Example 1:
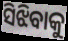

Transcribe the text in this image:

ସିଝିବାକୁ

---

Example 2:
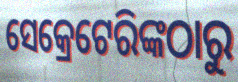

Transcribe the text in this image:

ସେକ୍ରେଟେରିଙ୍କଠାରୁ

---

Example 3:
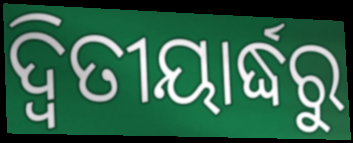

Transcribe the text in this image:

ଦ୍ଵିତୀୟାର୍ଦ୍ଧରୁ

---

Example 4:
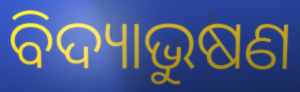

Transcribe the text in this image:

ବିଦ୍ୟାଭୁଷଣ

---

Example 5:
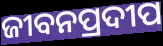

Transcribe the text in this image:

ଜୀବନପ୍ରଦୀପ